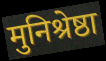
मुनिश्रेष्ठा